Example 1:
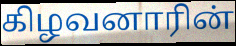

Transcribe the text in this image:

கிழவனாரின்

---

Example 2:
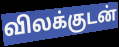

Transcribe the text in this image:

விலக்குடன்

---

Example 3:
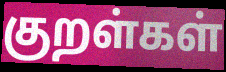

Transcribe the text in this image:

குறள்கள்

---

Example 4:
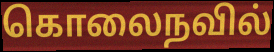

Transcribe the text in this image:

கொலைநவில்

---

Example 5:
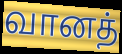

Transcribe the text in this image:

வானத்